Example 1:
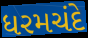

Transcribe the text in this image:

ધરમચંદે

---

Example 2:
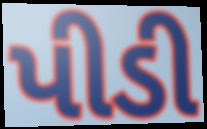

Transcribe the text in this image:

પીડી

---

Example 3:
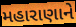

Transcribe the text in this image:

મહારાણાને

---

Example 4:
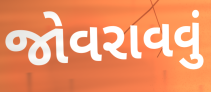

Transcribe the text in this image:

જોવરાવવું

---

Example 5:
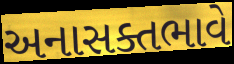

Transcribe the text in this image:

અનાસક્તભાવે